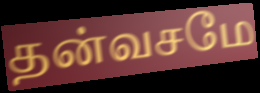
தன்வசமே